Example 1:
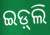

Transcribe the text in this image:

ଇଡ଼୍‌ଲି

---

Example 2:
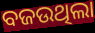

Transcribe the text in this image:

ବଜଉଥିଲା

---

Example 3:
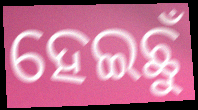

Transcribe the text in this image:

ହେଇଛୁଁ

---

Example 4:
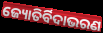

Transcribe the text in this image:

ଜ୍ୟୋତିର୍ବିଦାଭରଣ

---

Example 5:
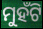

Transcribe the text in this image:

ମୁହଁଟି